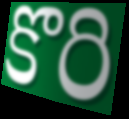
కొరి